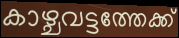
കാഴ്ചവട്ടത്തേക്ക്